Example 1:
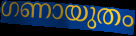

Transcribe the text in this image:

ഗണായുതം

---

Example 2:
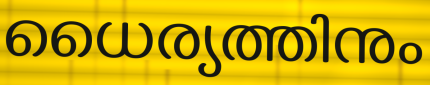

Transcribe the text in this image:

ധൈര്യത്തിനും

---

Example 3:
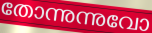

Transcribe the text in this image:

തോന്നുന്നുവോ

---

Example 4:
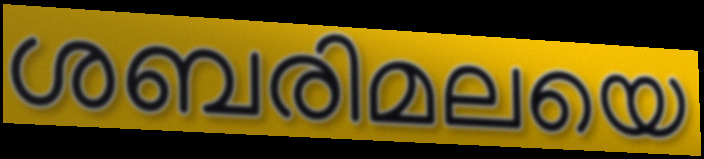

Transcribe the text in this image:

ശബരിമലയെ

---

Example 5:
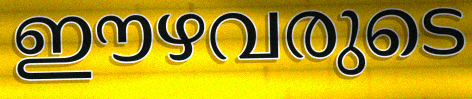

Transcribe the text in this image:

ഈഴവരുടെ